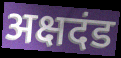
अक्षदंड